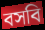
বসবি